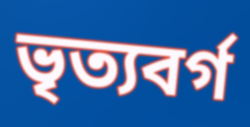
ভৃত্যবর্গ